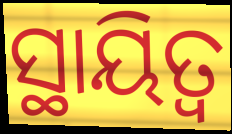
ସ୍ଥାୟିତ୍ୱ